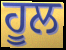
ਹੂਲ